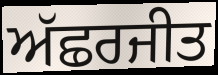
ਅੱਛਰਜੀਤ